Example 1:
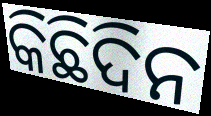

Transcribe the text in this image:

କିଛିଦିନ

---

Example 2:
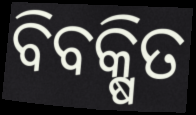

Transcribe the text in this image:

ବିବକ୍ଷିତ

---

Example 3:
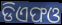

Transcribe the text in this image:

ଡିଏଫଓ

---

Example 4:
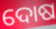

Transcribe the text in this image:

ଦୋଷ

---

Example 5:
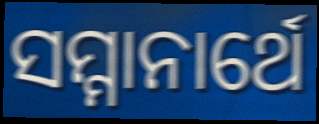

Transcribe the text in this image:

ସମ୍ମାନାର୍ଥେ